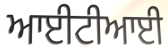
ਆਈਟੀਆਈ